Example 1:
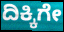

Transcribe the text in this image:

ದಿಕ್ಕಿಗೇ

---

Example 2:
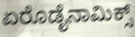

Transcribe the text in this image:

ಏರೊಡೈನಾಮಿಕ್ಸ್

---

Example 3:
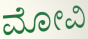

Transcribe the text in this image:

ಮೋವಿ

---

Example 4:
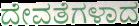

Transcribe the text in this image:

ದೇವತೆಗಳಾದ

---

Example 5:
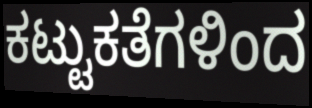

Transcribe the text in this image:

ಕಟ್ಟುಕತೆಗಳಿಂದ